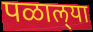
पळाल्या